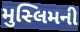
મુસ્લિમની